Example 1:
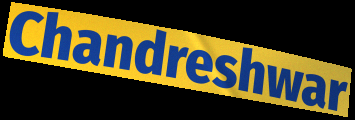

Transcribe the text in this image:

Chandreshwar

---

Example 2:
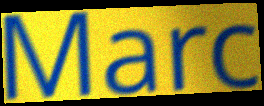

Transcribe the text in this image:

Marc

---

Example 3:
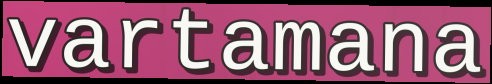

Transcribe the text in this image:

vartamana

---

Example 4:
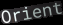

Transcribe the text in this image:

Orient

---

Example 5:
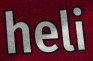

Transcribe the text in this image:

heli